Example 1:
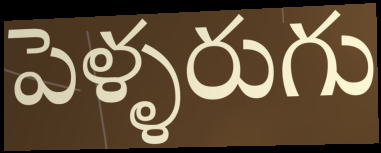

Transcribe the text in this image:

పెళ్ళరుగు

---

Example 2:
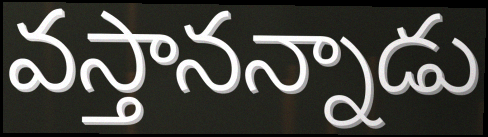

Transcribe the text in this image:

వస్తానన్నాడు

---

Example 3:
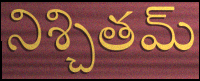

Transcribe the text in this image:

నిశ్చితమ్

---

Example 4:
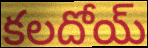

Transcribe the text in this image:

కలదోయ్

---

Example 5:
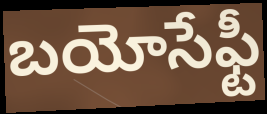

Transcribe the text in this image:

బయోసేఫ్టీ